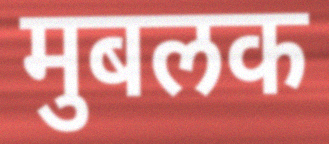
मुबलक